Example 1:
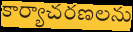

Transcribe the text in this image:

కార్యాచరణలను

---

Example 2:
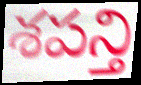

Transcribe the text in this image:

శపన్తి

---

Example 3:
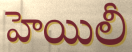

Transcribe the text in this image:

హెయిలీ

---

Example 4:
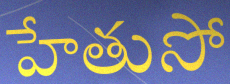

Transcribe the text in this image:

హేతుసో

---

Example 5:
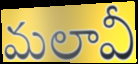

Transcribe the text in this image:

మలావీ